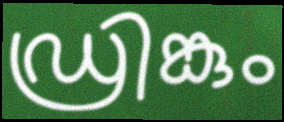
ഡ്രിങ്കും